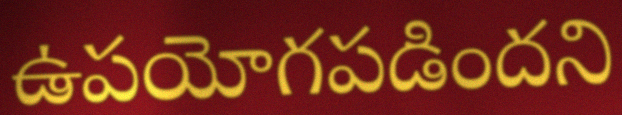
ఉపయోగపడిందని